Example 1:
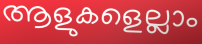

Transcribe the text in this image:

ആളുകളെല്ലാം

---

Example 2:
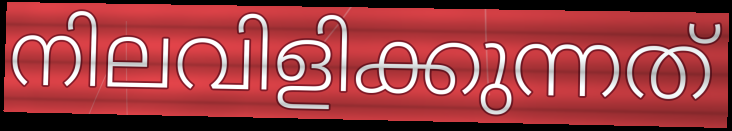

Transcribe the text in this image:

നിലവിളിക്കുന്നത്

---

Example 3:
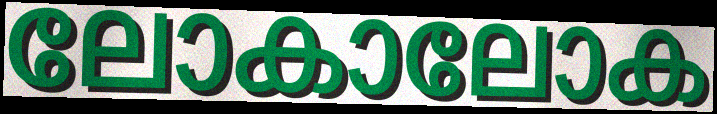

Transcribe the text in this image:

ലോകാലോക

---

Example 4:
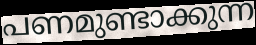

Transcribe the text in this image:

പണമുണ്ടാക്കുന്ന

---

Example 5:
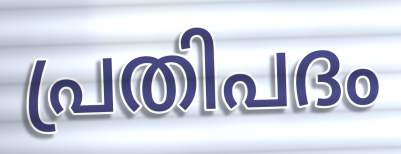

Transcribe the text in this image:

പ്രതിപദം